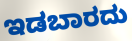
ಇಡಬಾರದು